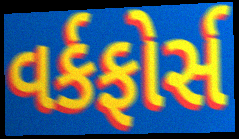
વર્કફોર્સ